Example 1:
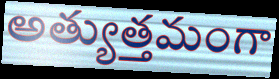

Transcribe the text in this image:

అత్యుత్తమంగా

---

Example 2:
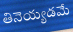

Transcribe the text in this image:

తినెయ్యడమే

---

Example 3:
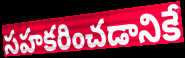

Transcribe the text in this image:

సహకరించడానికే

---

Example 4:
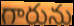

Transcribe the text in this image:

గారును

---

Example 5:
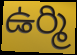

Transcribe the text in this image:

ఉర్మి